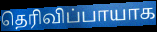
தெரிவிப்பாயாக